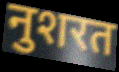
नुशरत